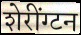
शेरींग्टन